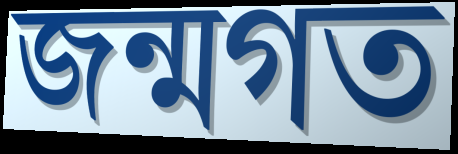
জন্মগত